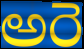
అరె